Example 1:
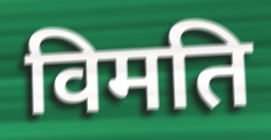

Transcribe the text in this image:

विमति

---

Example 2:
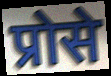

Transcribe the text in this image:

प्रोसे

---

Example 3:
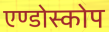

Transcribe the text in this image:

एण्डोस्कोप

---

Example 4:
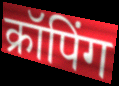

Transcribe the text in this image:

क्रॉपिंग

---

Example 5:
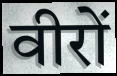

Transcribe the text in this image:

वीरों